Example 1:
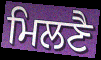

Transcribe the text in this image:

ਮਿਲਣੈ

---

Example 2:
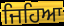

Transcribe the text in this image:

ਜਿਹਿਆ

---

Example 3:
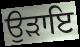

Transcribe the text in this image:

ਉੜਾਇ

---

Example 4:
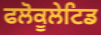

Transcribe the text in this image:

ਫਲੋਕੂਲੇਟਿਡ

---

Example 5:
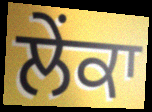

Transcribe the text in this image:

ਲੇਂਕਾ